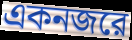
একনজরে